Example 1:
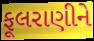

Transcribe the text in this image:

ફૂલરાણીને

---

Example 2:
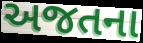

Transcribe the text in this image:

અજતના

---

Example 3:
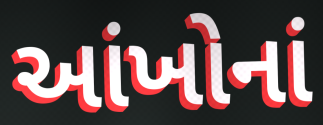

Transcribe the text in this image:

આંખોનાં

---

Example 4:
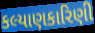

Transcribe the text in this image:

કલ્યાણકારિણી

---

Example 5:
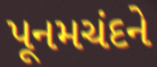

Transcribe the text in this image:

પૂનમચંદને